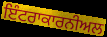
ਇੰਟਰਾਕਾਰਨੀਅਲ